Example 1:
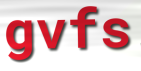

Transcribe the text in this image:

gvfs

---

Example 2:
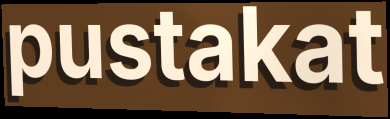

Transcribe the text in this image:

pustakat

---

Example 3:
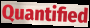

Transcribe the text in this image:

Quantified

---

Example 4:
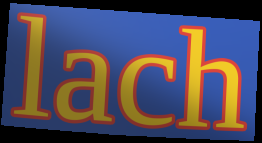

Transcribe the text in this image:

lach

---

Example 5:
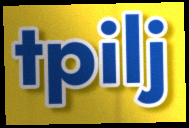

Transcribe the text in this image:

tpilj